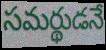
సమర్థుడనే